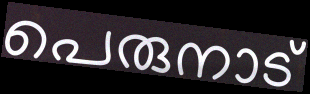
പെരുനാട്